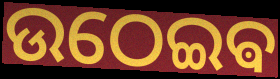
ଉଠେଇଵ